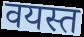
वयस्त